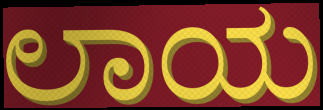
ಲಾಯ